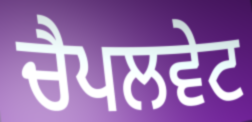
ਚੈਪਲਵੇਟ